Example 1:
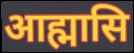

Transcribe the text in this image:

आह्मासि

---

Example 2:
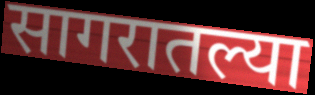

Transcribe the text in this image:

सागरातल्या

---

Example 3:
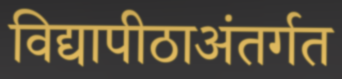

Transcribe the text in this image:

विद्यापीठाअंतर्गत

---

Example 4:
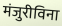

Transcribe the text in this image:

मंजुरीविना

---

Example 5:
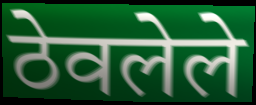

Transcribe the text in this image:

ठेवलेले